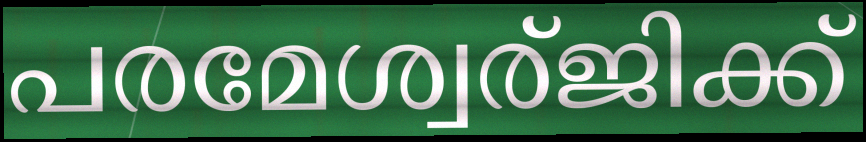
പരമേശ്വര്ജിക്ക്